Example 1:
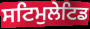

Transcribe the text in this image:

ਸਟਿਮੁਲੇਟਿਡ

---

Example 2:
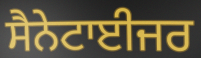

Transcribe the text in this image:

ਸੈਨੇਟਾਈਜਰ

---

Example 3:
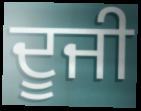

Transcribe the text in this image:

ਦੂਜੀ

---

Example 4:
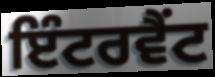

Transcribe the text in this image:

ਇੰਟਰਵੈਂਟ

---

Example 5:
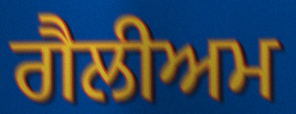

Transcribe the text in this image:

ਗੈਲੀਅਮ